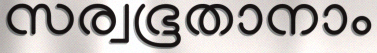
സര്വഭൂതാനാം